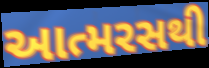
આત્મરસથી